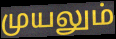
முயலும்